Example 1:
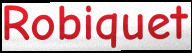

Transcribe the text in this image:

Robiquet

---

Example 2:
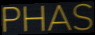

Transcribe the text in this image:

PHAS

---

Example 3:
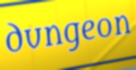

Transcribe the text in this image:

dungeon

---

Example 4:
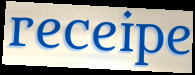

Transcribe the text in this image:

receipe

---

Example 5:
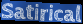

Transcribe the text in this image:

Satirical